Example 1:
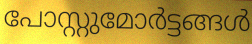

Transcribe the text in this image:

പോസ്റ്റുമോർട്ടങ്ങൾ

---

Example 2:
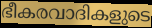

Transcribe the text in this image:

ഭീകരവാദികളുടെ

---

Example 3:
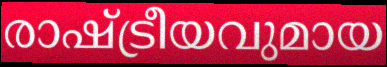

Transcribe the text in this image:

രാഷ്ട്രീയവുമായ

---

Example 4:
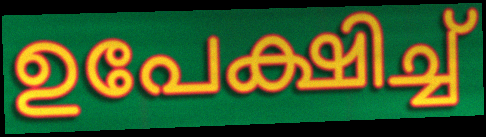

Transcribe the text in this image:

ഉപേക്ഷിച്ച്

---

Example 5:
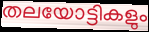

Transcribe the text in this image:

തലയോട്ടികളും